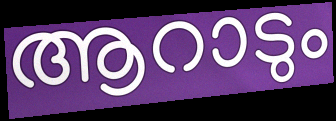
ആറാടും